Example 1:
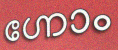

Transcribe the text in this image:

ഗ്നോം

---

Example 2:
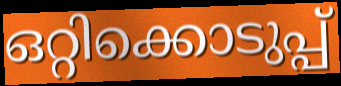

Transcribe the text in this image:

ഒറ്റിക്കൊടുപ്പ്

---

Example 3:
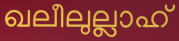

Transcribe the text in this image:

ഖലീലുല്ലാഹ്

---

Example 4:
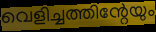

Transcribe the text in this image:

വെളിച്ചത്തിന്റേയും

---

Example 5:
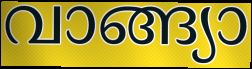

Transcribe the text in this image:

വാങ്ങ്യാ